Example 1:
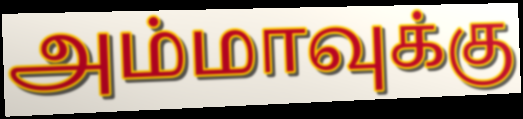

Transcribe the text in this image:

அம்மாவுக்கு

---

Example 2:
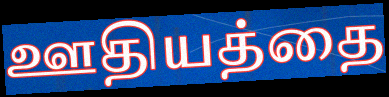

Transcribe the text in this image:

ஊதியத்தை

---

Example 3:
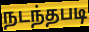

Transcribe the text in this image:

நடந்தபடி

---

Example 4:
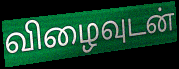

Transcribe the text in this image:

விழைவுடன்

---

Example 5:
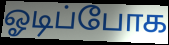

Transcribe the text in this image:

ஓடிப்போக